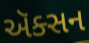
ઍક્સન